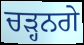
ਚੜ੍ਹਨਗੇ